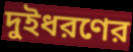
দুইধরণের